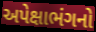
અપેક્ષાભંગનો